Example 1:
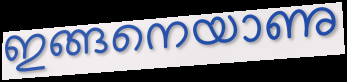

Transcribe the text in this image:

ഇങ്ങനെയാണു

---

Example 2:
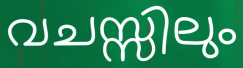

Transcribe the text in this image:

വചസ്സിലും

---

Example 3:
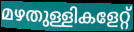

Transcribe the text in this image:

മഴതുള്ളികളേറ്റ്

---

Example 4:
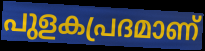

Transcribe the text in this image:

പുളകപ്രദമാണ്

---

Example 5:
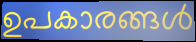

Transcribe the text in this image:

ഉപകാരങ്ങൾ